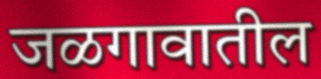
जळगावातील